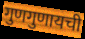
गुणगुणायची